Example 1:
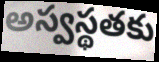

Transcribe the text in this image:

అస్వస్థతకు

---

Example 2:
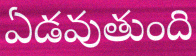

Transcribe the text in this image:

ఏడవుతుంది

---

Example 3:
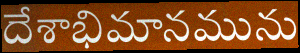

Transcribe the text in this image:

దేశాభిమానమును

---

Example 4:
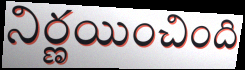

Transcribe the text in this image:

నిర్ణయించింది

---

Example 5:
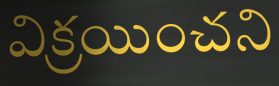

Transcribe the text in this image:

విక్రయించని